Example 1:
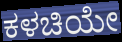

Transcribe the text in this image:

ಕಳಚಿಯೇ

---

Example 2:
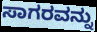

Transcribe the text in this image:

ಸಾಗರವನ್ನು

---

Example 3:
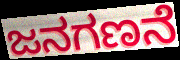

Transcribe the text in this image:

ಜನಗಣನೆ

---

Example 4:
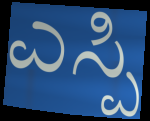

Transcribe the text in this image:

ಎಸ್ಪಿ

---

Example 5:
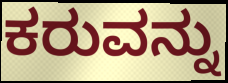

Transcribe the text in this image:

ಕರುವನ್ನು